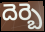
దెర్బె